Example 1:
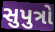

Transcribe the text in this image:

સુપુત્રો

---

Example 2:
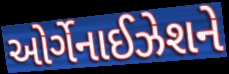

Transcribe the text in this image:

ઓર્ગેનાઈઝેશને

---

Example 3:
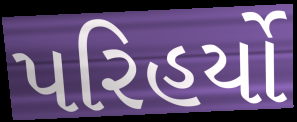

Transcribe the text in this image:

પરિહર્યો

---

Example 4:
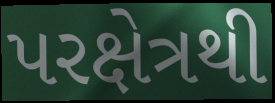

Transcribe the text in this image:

પરક્ષેત્રથી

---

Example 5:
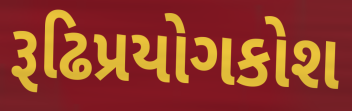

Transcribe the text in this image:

રૂઢિપ્રયોગકોશ